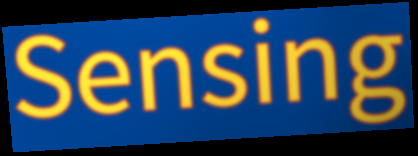
Sensing